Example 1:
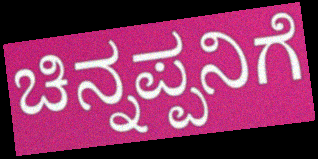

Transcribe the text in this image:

ಚಿನ್ನಪ್ಪನಿಗೆ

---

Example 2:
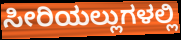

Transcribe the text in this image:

ಸೀರಿಯಲ್ಲುಗಳಲ್ಲಿ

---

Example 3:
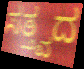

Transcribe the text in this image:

ಸತ್ತ್ವದ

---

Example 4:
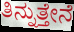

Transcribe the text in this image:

ತಿನ್ನುತ್ತೇನೆ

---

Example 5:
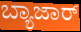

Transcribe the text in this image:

ಬ್ಯಾಜಾರ್